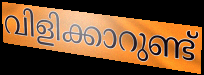
വിളിക്കാറുണ്ട്